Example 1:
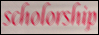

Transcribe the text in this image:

scholorship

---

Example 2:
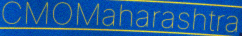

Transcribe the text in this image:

CMOMaharashtra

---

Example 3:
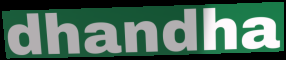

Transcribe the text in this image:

dhandha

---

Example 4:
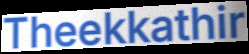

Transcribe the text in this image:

Theekkathir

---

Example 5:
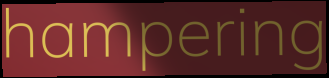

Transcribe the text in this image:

hampering